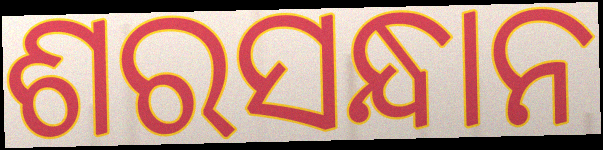
ଶରସନ୍ଧାନ